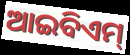
ଆଇବିଏମ୍